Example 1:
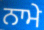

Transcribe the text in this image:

ਨਾਮੇ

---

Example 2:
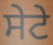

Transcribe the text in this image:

ਸੇਟੇ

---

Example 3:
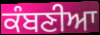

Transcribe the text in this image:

ਕੰਬਣੀਆ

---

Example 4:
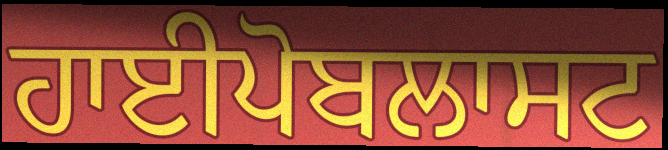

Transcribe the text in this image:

ਹਾਈਪੋਬਲਾਸਟ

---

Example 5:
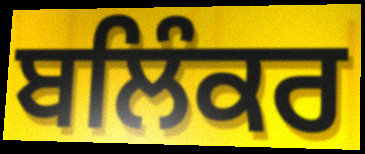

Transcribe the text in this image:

ਬਲਿੰਕਰ